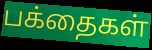
பக்தைகள்